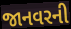
જાનવરની